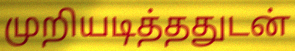
முறியடித்ததுடன்